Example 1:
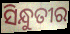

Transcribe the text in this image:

ସିନ୍ଧୁତୀର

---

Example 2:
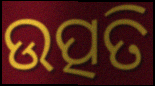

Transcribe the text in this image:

ଉତ୍ପତି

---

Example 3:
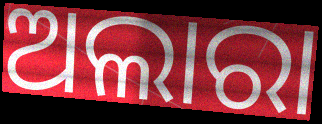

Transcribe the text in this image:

ଅଲାରା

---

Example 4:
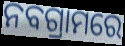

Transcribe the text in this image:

ନବଗ୍ରାମରେ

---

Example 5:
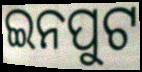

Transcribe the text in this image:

ଇନପୁଟ